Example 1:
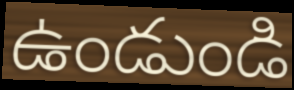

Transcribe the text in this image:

ఉండుండి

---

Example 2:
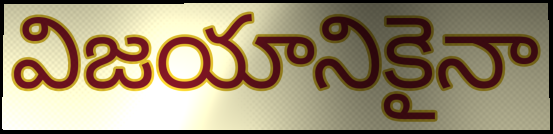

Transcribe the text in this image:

విజయానికైనా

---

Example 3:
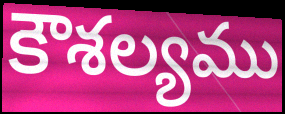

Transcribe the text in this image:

కౌశల్యము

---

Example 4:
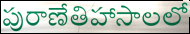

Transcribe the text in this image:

పురాణేతిహాసాలలో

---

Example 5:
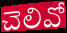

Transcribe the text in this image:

చెలివో